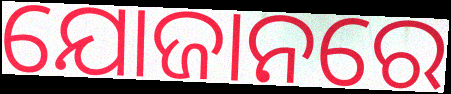
ଯୋଜାନରେ